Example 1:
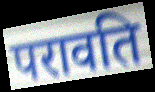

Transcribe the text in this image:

परावति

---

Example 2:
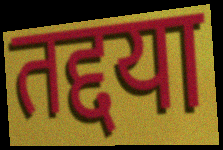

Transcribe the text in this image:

तद्दया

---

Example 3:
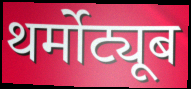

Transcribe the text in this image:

थर्मोट्यूब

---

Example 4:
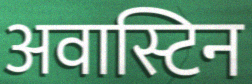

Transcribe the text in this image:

अवास्टिन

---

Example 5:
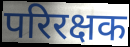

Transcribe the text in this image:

परिरक्षक